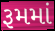
રૂમમાં